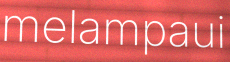
melampaui